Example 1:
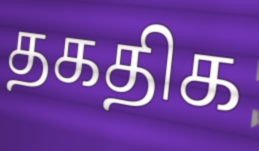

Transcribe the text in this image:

தகதிக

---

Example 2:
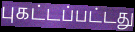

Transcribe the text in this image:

புகட்டப்பட்டது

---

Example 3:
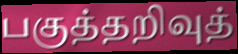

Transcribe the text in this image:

பகுத்தறிவுத்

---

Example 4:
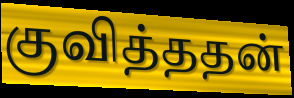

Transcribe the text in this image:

குவித்ததன்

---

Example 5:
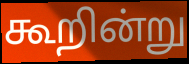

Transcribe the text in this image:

கூறின்று